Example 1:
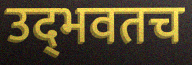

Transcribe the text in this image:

उद्‌भवतच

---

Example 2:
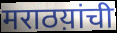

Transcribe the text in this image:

मराठय़ांची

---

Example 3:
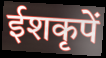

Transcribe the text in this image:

ईशकृपें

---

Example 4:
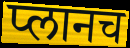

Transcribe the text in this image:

प्लानच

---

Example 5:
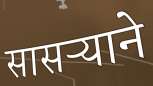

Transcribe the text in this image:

सासऱ्याने